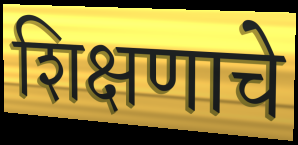
शिक्षणाचे